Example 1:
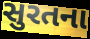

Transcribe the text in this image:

સુરતના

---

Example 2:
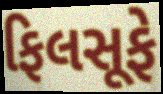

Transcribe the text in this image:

ફિલસૂફે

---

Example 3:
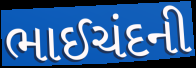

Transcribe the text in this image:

ભાઈચંદની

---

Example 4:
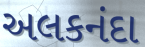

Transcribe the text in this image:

અલકનંદા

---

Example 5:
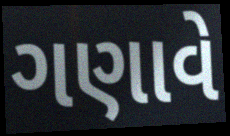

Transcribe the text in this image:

ગણાવે